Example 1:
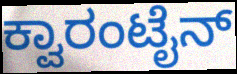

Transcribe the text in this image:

ಕ್ವಾರಂಟೈನ್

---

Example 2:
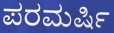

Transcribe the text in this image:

ಪರಮರ್ಷಿ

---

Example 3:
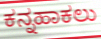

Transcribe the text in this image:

ಕನ್ನಹಾಕಲು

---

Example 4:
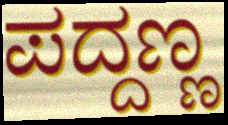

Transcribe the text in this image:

ಪದ್ದಣ್ಣ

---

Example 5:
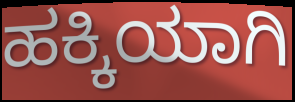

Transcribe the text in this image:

ಹಕ್ಕಿಯಾಗಿ